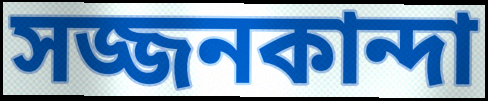
সজ্জনকান্দা